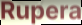
Rupera